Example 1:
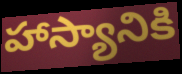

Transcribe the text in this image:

హాస్యానికి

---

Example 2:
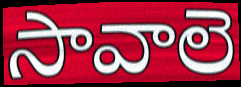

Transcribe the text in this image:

సావాలె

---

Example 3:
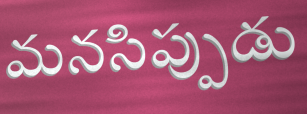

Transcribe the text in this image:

మనసిప్పుడు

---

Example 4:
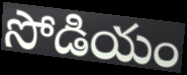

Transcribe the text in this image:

సోడియం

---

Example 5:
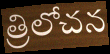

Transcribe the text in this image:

త్రిలోచన